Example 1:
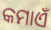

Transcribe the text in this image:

କମାଏଁ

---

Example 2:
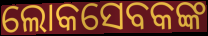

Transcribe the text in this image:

ଲୋକସେବକଙ୍କ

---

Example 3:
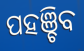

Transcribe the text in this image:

ପହଞ୍ଚିବ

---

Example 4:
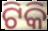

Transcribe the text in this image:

ଟିକି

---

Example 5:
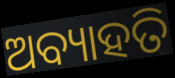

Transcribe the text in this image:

ଅବ୍ୟାହତି